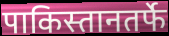
पाकिस्तानतर्फे